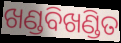
ଖଣ୍ଡବିଖଣ୍ଡିତ